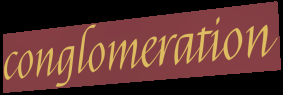
conglomeration